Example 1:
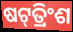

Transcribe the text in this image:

ଷଟ୍‌ତ୍ରିଂଶ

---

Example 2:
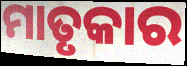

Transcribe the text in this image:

ମାତୃକାର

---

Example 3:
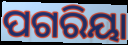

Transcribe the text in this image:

ପଗରିୟା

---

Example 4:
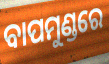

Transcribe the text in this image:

ବାପମୁଣ୍ଡରେ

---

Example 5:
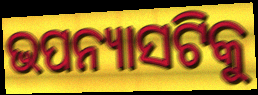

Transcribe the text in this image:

ଭପନ୍ୟାସଟିକୁ